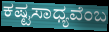
ಕಷ್ಟಸಾಧ್ಯವೆಂಬ